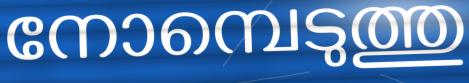
നോമ്പെടുത്തു